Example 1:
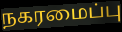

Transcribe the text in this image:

நகரமைப்பு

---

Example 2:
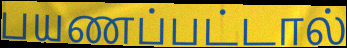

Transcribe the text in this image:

பயணப்பட்டால்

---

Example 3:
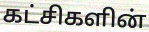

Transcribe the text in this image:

கட்சிகளின்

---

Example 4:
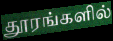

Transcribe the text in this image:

தூரங்களில்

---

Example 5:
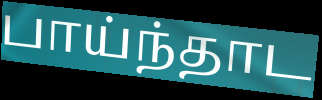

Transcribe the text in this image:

பாய்ந்தாட